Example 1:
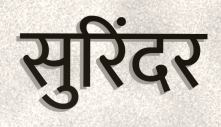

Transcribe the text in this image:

सुरिंदर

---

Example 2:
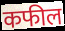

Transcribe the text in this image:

कफील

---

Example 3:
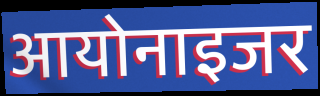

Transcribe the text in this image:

आयोनाइजर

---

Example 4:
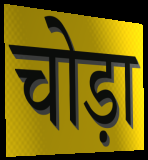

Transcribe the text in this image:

चोड़ा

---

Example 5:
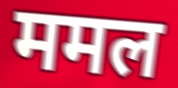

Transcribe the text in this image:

ममल